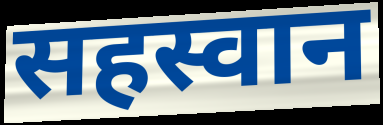
सहस्वान